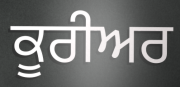
ਕੂਰੀਅਰ